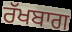
ਰੱਖਬਾਗ